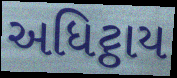
અધિટ્ઠાય